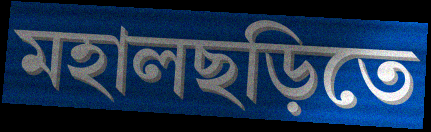
মহালছড়িতে